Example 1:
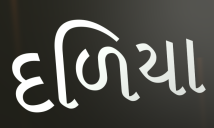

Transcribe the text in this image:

દળિયા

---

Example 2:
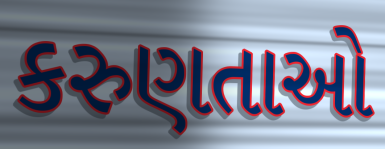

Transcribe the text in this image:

કરુણતાઓ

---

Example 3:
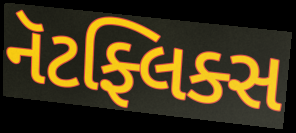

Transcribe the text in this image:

નૅટફ્લિક્સ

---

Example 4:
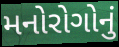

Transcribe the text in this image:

મનોરોગોનું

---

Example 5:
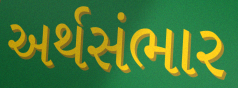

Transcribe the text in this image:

અર્થસંભાર